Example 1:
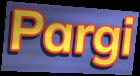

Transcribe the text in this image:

Pargi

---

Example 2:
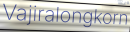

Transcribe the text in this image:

Vajiralongkorn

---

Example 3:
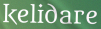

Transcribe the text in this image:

kelidare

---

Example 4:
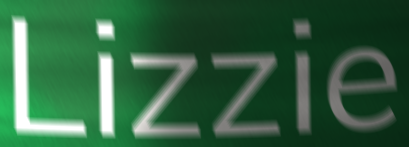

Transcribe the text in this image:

Lizzie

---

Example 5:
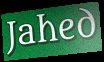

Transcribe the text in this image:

Jahed